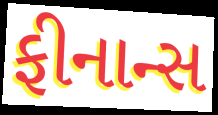
ફીનાન્સ